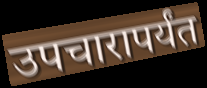
उपचारापर्यंत